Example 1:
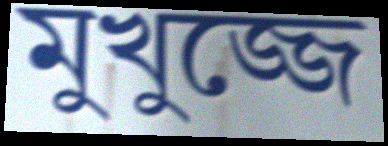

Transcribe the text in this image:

মুখুজ্জে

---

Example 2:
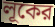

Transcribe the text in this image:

লূকের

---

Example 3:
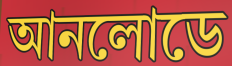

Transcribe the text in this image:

আনলোডে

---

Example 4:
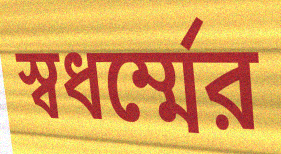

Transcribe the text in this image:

স্বধর্ম্মের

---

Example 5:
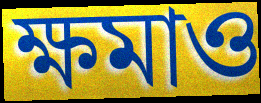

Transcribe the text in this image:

ক্ষমাও